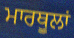
ਮਾਰਥੂਲਾਂ